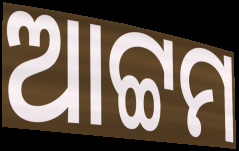
ଆଟ୍ଟମ